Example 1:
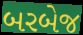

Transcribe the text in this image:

બરબેજ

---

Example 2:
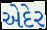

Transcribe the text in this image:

એદેર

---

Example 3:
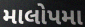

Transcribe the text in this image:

માલોપમા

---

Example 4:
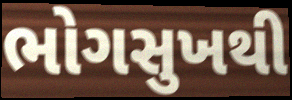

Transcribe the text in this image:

ભોગસુખથી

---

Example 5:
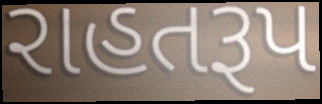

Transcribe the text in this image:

રાહતરૂપ